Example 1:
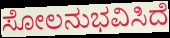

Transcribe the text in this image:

ಸೋಲನುಭವಿಸಿದೆ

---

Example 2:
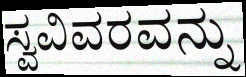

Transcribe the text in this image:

ಸ್ವವಿವರವನ್ನು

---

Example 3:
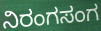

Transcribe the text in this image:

ನಿರಂಗಸಂಗ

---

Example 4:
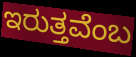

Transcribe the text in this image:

ಇರುತ್ತವೆಂಬ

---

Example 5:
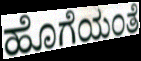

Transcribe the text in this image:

ಹೊಗೆಯಂತೆ